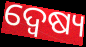
ଦ୍ୱେଷ୍ୟ